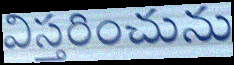
విస్తరించును